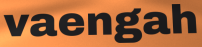
vaengah